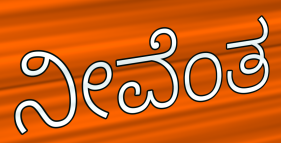
ನೀವೆಂತ